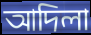
আদিলা